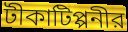
টীকাটিপ্পনীর